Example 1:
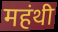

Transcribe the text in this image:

महंथी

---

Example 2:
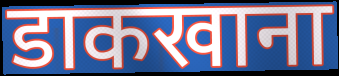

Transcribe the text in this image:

डाकखाना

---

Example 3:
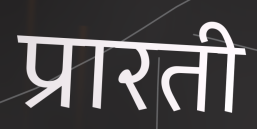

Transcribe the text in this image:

प्रारती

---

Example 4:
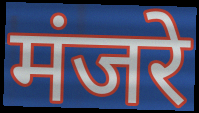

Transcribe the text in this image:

मंजरे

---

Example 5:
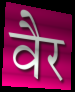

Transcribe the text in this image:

वैर